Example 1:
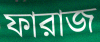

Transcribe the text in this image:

ফারাজ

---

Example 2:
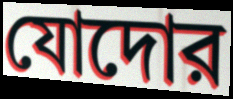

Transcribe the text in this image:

যোদোর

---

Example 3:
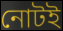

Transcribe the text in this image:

নোটই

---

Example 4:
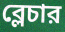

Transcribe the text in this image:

ব্লেচার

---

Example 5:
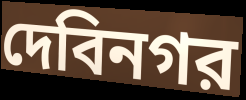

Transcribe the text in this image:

দেবিনগর